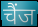
चैंज